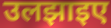
उलझाइए